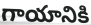
గాయానికి